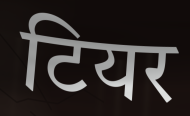
टियर